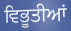
ਵਿਭੂਤੀਆਂ